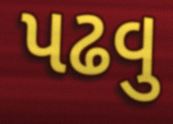
પઢવુ